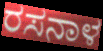
ರಸನಾಳ